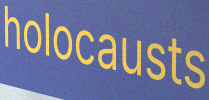
holocausts